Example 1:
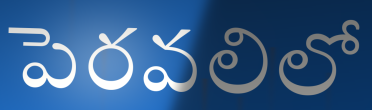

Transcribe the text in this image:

పెరవలిలో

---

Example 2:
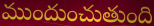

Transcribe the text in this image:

ముందుంచుతుంది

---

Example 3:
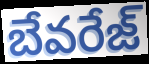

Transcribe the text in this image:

బేవరేజ్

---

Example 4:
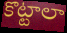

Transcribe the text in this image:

కొట్టాలా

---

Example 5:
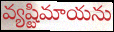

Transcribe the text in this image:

వ్యష్టిమాయను